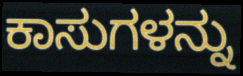
ಕಾಸುಗಳನ್ನು